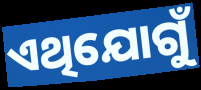
ଏଥିଯୋଗୁଁ